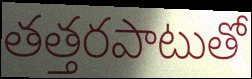
తత్తరపాటుతో